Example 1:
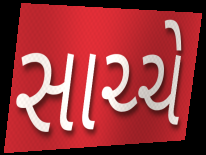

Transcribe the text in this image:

સાચ્ચે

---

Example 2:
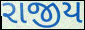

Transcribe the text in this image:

રાજીય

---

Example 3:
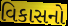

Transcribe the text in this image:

વિકાસનો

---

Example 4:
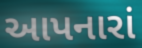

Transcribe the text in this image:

આપનારાં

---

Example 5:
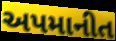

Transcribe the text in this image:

અપમાનીત